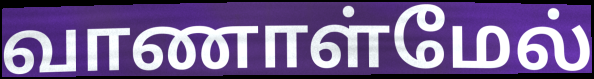
வாணாள்மேல்